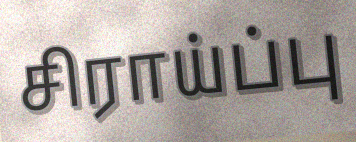
சிராய்ப்பு